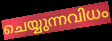
ചെയ്യുന്നവിധം